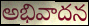
అభివాదన